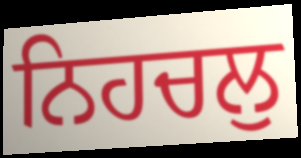
ਨਿਹਚਲੁ